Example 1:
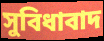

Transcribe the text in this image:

সুবিধাবাদ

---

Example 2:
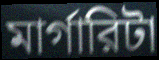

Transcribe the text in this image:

মার্গারিটা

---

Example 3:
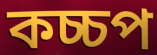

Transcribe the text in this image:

কচ্চপ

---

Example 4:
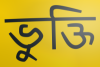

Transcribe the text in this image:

ভুক্তি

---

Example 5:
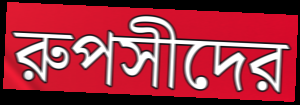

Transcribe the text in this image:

রুপসীদের